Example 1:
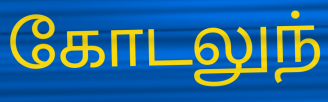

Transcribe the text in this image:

கோடலுந்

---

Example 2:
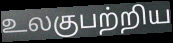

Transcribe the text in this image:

உலகுபற்றிய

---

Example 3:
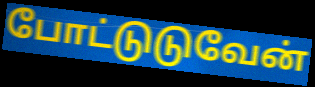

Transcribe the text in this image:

போட்டுடுவேன்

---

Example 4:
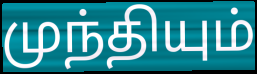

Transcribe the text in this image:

முந்தியும்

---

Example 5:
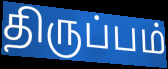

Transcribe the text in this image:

திருப்பம்